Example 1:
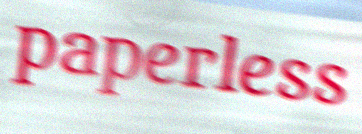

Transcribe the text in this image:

paperless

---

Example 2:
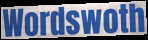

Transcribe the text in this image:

Wordswoth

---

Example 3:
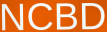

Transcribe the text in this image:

NCBD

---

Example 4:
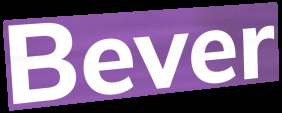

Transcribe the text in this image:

Bever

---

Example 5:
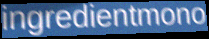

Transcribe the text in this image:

ingredientmono